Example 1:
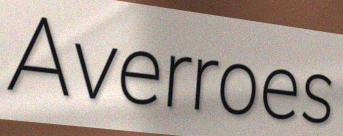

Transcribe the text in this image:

Averroes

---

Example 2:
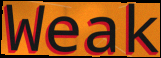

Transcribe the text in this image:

Weak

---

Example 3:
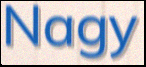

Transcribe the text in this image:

Nagy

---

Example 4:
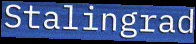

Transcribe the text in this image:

Stalingrad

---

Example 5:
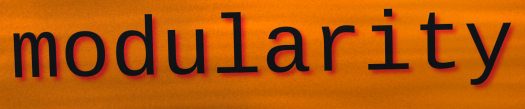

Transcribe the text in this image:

modularity